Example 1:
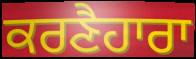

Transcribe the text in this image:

ਕਰਣੈਹਾਰਾ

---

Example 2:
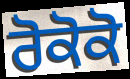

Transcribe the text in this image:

ਰੋਕੋਕੋ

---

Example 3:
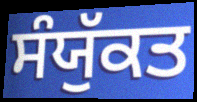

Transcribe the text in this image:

ਸੰਯੁੱਕਤ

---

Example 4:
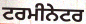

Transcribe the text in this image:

ਟਰਮੀਨੇਟਰ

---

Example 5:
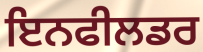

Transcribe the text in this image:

ਇਨਫੀਲਡਰ